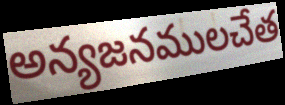
అన్యజనములచేత